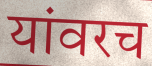
यांवरच